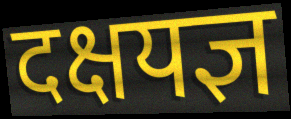
दक्षयज्ञ